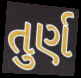
તુર્ણ